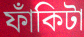
ফাঁকিটা